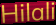
Hilali